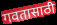
गवतासाठी